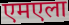
एमएला